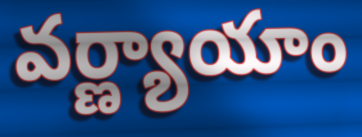
వర్ణ్యాయాం